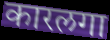
कारलगा